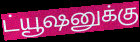
ட்யூஷனுக்கு